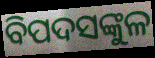
ବିପଦସଙ୍କୁଳ